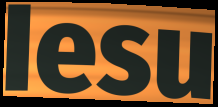
Iesu